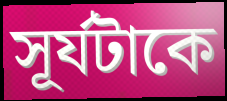
সূর্যটাকে